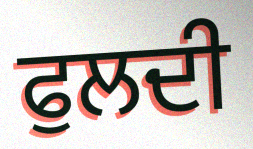
ਫੁਲਦੀ